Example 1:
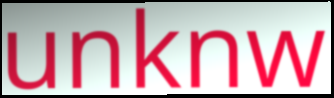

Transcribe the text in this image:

unknw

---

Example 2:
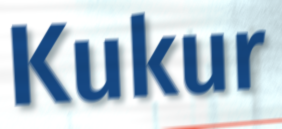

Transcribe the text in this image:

Kukur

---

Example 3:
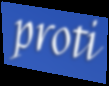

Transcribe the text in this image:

proti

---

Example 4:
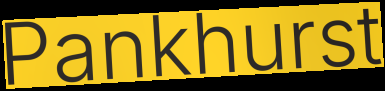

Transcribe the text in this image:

Pankhurst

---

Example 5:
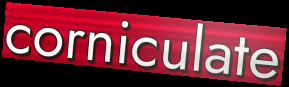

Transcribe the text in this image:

corniculate